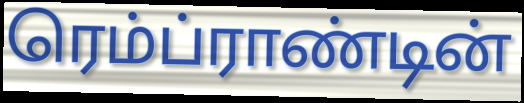
ரெம்ப்ராண்டின்